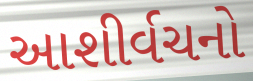
આશીર્વચનો